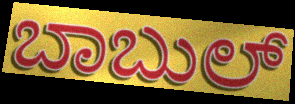
ಬಾಬುಲ್